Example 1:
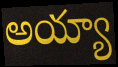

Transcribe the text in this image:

అయ్యా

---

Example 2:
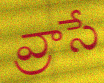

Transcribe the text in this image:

వ్రాసే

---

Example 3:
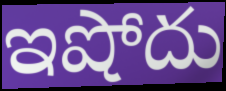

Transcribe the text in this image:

ఇషోదు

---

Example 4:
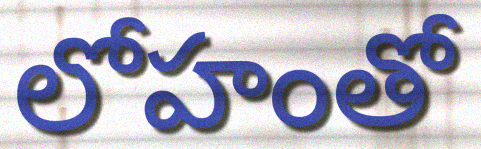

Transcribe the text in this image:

లోహంతో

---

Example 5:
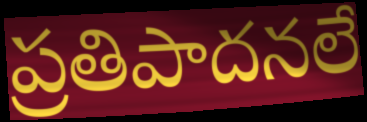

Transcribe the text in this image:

ప్రతిపాదనలే